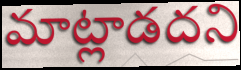
మాట్లాడదని